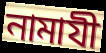
নামাযী